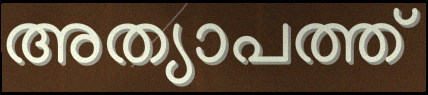
അത്യാപത്ത്